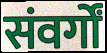
संवर्गों